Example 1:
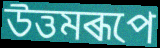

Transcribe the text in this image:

উত্তমৰূপে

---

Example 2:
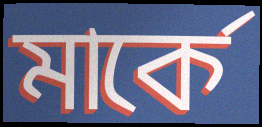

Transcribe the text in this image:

মাৰ্কে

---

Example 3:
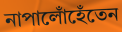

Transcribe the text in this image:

নাপালোঁহেঁতেন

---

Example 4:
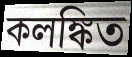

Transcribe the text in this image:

কলঙ্কিত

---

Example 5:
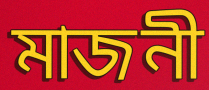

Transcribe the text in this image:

মাজনী